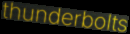
thunderbolts